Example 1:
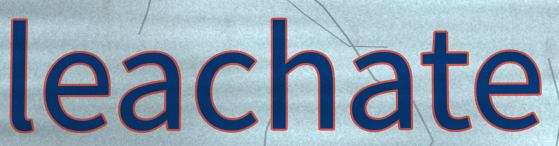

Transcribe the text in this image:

leachate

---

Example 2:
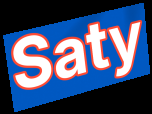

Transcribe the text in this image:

Saty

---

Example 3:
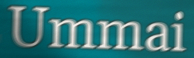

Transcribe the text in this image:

Ummai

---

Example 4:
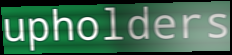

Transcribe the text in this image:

upholders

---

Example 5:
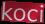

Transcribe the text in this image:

koci